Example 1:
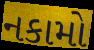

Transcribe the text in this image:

નકામો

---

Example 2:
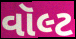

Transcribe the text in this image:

વૉલ્ટ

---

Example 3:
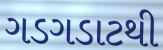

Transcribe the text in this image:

ગડગડાટથી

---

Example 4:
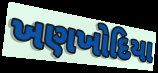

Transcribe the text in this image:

ખણખોદિયા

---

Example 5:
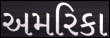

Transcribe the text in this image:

અમરિકા